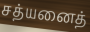
சத்யனைத்